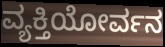
ವ್ಯಕ್ತಿಯೋರ್ವನ